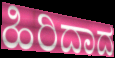
ಹಿರಿದಾದ